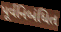
પૂર્વનિબંધિત